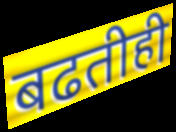
बढतीही